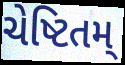
ચેષ્ટિતમ્